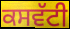
ਕਸਵੱਟੀ